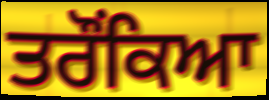
ਤਰੌਂਕਿਆ